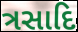
ત્રસાદિ